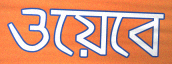
ওয়েবে